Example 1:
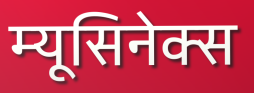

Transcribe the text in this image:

म्यूसिनेक्स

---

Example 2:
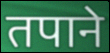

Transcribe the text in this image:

तपाने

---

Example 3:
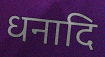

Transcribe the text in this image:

धनादि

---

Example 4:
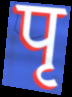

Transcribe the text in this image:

पृ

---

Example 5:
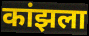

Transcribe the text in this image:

कांझला